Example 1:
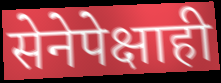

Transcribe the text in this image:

सेनेपेक्षाही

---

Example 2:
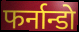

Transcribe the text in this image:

फर्नान्डो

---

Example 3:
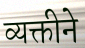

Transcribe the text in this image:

व्यक्तीने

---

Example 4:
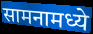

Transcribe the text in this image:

सामनामध्ये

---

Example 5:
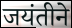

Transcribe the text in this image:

जयंतीने